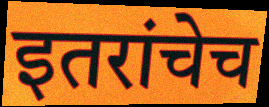
इतरांचेच